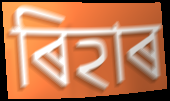
ৰিহাৰ